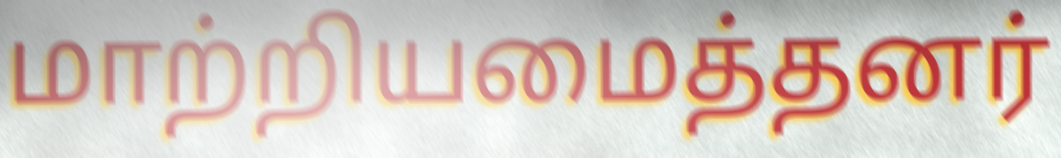
மாற்றியமைத்தனர்